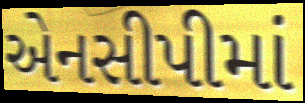
એનસીપીમાં